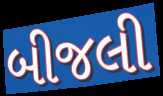
બીજલી